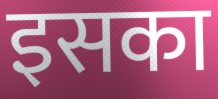
इसका